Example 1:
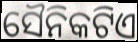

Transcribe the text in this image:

ସୈନିକଟିଏ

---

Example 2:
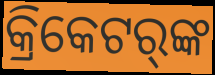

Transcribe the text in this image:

କ୍ରିକେଟର୍‌ଙ୍କ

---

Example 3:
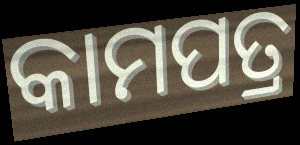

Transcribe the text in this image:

କାମପତ୍ର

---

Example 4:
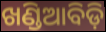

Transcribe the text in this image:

ଖଣ୍ଡିଆବିଡ଼ି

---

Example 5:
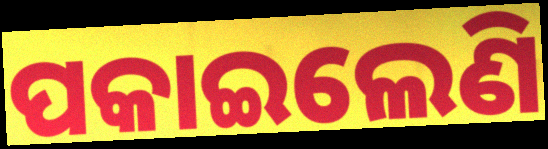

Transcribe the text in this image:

ପକାଇଲେଣି